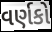
વર્ણકો